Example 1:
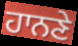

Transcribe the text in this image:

ਹਾਨਣੇ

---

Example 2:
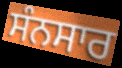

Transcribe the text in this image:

ਸੰਨਸਾਰ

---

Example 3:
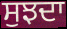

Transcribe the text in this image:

ਸੁਝਦਾ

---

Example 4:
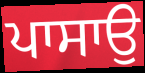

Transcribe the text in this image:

ਪਾਸਾਉ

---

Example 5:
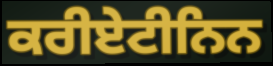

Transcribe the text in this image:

ਕਰੀਏਟੀਨਿਨ